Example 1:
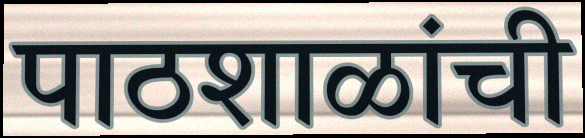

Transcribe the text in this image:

पाठशाळांची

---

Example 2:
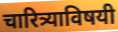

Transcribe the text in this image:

चारित्र्याविषयी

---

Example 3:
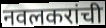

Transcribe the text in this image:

नवलकरांची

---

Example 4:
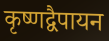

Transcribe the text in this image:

कृष्णद्वैपायन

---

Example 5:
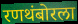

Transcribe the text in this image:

रणथंबोरला